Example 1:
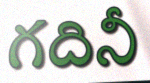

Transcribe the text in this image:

గదినీ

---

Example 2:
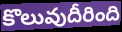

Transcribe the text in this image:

కొలువుదీరింది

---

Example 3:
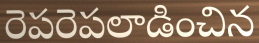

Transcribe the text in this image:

రెపరెపలాడించిన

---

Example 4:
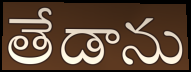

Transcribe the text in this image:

తేడాను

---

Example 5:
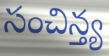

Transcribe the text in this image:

సంచిన్త్య